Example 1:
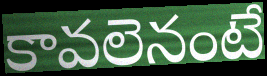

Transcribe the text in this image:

కావలెనంటే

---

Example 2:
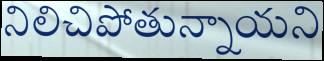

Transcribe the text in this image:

నిలిచిపోతున్నాయని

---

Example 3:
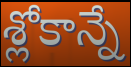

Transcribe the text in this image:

శ్లోకాన్నే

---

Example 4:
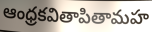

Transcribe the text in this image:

ఆంధ్రకవితాపితామహ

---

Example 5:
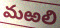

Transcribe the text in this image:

మఱలి